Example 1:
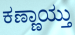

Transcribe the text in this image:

ಕಣ್ಣಾಯ್ತು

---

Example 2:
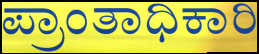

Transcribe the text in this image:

ಪ್ರಾಂತಾಧಿಕಾರಿ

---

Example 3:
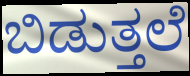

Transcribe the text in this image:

ಬಿಡುತ್ತಲೆ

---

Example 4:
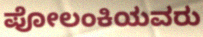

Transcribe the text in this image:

ಪೋಲಂಕಿಯವರು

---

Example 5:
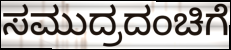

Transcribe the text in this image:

ಸಮುದ್ರದಂಚಿಗೆ